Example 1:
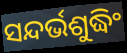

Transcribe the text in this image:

ସନ୍ଦର୍ଭଶୁଦ୍ଧିଂ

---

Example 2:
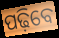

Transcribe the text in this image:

ପଢ଼ିବେ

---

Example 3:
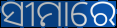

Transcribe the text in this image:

ସୀମାରେ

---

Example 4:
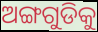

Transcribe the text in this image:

ଅଙ୍ଗଗୁଡିକୁ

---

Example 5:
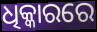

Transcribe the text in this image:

ଧିକ୍କାରରେ